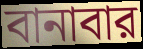
বানাবার